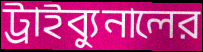
ট্রাইব্যুনালের